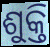
ଶୁକ୍ତି